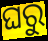
ଘରୁ